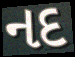
નદ